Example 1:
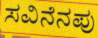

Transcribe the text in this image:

ಸವಿನೆನಪು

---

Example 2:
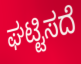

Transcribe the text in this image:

ಘಟ್ಟಿಸದೆ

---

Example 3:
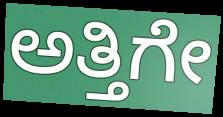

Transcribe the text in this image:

ಅತ್ತಿಗೇ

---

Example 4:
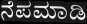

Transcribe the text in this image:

ನೆಪಮಾಡಿ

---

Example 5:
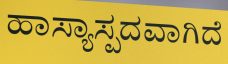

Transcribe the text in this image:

ಹಾಸ್ಯಾಸ್ಪದವಾಗಿದೆ